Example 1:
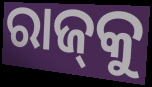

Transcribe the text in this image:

ରାଜ୍‍କୁ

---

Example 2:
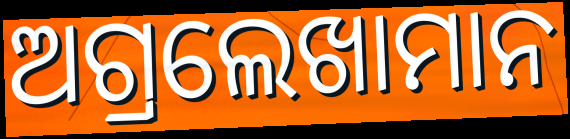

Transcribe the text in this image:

ଅଗ୍ରଲେଖାମାନ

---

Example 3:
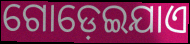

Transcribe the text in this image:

ଗୋଡ଼େଇଯାଏ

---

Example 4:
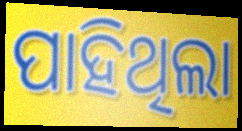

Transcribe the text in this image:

ପାହିଥିଲା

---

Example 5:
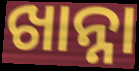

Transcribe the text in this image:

ଖାନ୍ନା